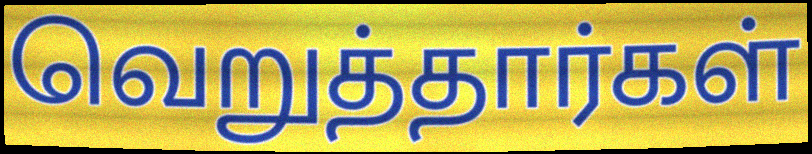
வெறுத்தார்கள்